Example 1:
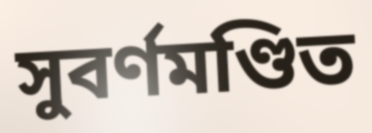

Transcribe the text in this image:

সুবর্ণমণ্ডিত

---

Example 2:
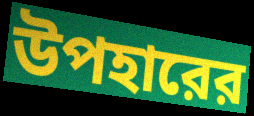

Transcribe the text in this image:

উপহারের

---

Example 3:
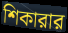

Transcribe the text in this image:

শিকারার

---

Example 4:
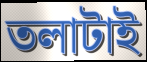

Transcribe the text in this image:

তলাটাই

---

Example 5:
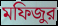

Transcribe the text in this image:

মফিজুর